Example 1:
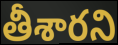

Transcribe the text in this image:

తీశారని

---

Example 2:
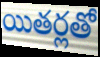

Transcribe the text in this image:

యితర్లతో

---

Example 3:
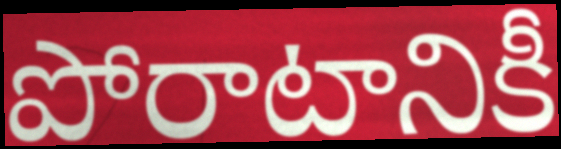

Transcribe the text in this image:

పోరాటానికీ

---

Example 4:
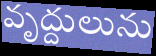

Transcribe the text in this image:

వృద్దులును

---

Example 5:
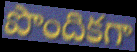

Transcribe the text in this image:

పొందికగా